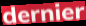
dernier